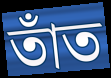
তাঁত